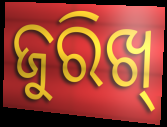
ଜୁରିଖ୍